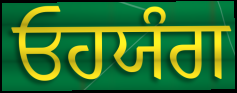
ਓਹਯੰਗ